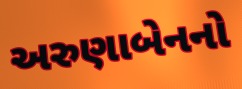
અરુણાબેનનો